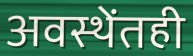
अवस्थेंतही